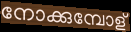
നോക്കുമ്പോള്